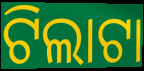
ଟିଲାଟା